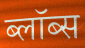
ब्लॉब्स